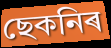
ছেকনিৰ